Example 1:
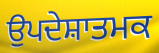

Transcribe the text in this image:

ਉਪਦੇਸ਼ਾਤਮਕ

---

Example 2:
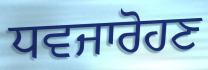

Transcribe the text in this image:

ਧਵਜਾਰੋਹਣ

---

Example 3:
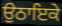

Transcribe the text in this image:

ਉਠਾਇਕੇ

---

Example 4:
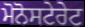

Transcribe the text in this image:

ਮੋਨੋਸਟੇਰੇਟ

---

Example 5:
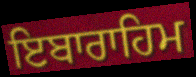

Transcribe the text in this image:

ਇਬਾਰਾਹਿਮ